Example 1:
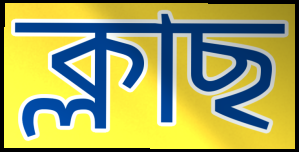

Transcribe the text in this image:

ক্লাছ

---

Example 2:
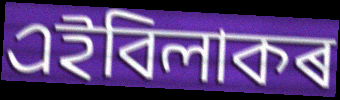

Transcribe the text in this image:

এইবিলাকৰ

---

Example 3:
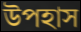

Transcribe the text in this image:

উপহাস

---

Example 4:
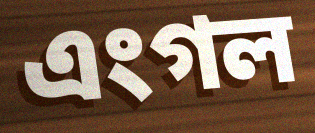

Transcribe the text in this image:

এংগল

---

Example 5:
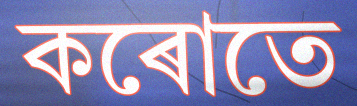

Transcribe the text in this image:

কৰোতে